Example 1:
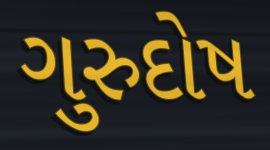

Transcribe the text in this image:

ગુરુદોષ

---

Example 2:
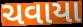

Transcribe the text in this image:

ચવાયા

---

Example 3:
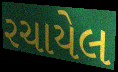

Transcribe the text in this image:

રચાયેલ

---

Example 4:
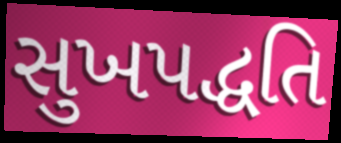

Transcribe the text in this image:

સુખપદ્ધતિ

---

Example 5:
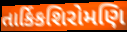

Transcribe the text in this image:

તાર્કિકશિરોમણિ